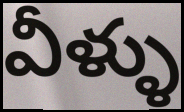
వీళ్ళు